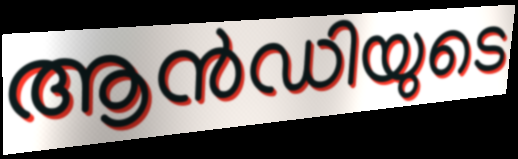
ആൻഡിയുടെ